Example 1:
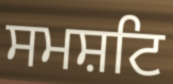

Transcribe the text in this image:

ਸਮਸ਼ਟਿ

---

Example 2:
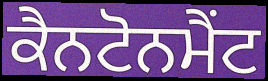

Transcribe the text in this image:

ਕੈਨਟੋਨਮੈਂਟ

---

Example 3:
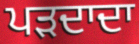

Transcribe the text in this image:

ਪੜਦਾਦਾ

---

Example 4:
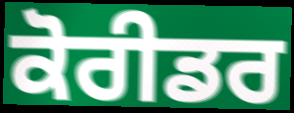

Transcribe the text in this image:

ਕੋਰੀਡਰ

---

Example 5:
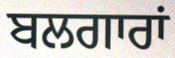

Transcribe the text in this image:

ਬਲਗਾਰਾਂ